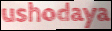
ushodaya